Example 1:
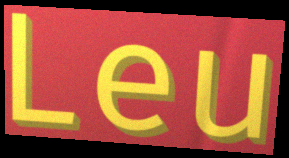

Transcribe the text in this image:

Leu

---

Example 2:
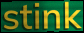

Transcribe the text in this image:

stink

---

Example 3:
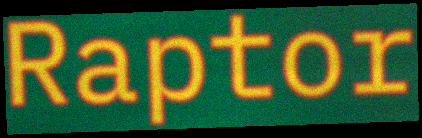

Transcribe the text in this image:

Raptor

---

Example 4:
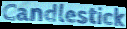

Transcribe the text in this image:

Candlestick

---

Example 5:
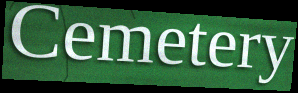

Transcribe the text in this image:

Cemetery